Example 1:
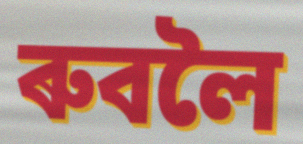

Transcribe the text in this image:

ৰুবলৈ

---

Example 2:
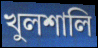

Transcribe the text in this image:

খুলশালি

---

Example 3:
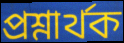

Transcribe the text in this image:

প্ৰশ্নাৰ্থক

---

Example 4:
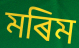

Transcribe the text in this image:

মৰিম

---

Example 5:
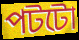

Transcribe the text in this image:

পটটো